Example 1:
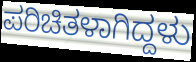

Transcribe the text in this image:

ಪರಿಚಿತಳಾಗಿದ್ದಳು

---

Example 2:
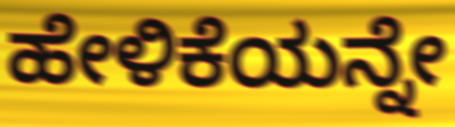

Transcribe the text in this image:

ಹೇಳಿಕೆಯನ್ನೇ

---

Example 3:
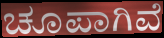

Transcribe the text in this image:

ಚೂಪಾಗಿವೆ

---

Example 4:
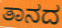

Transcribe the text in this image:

ತಾನದ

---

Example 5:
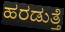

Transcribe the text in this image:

ಹರಡುತ್ತೆ